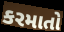
કરમાતો